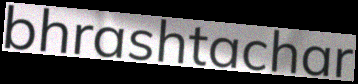
bhrashtachar